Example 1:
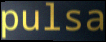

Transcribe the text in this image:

pulsa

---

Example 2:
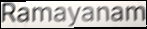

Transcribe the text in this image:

Ramayanam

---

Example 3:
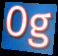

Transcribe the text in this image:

Og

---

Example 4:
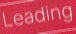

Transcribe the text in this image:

Leading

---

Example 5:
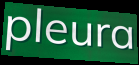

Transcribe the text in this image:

pleura